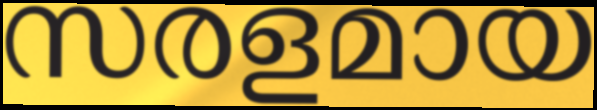
സരളമായ